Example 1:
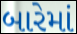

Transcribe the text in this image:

બારેમાં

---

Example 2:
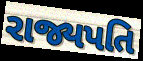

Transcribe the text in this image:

રાજ્યપતિ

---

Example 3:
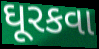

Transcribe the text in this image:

ઘૂરકવા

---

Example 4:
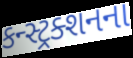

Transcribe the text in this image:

કન્સ્ટ્રક્શનના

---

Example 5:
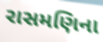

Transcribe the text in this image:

રાસમણિના